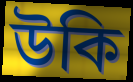
উকি